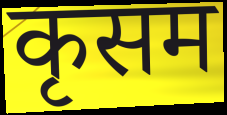
कृसम